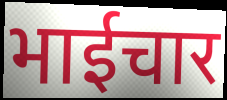
भाईचार